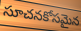
సూచనకోసమైన